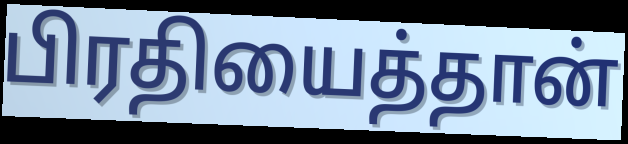
பிரதியைத்தான்